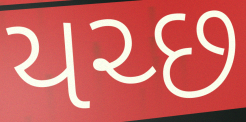
યચ્છ